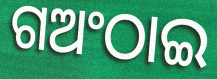
ଗଅଂଠାଇ